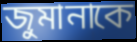
জুমানাকে